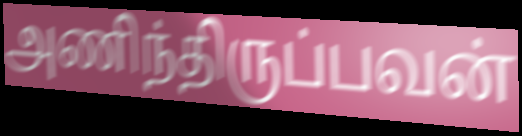
அணிந்திருப்பவன்